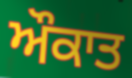
ਔਕਾਤ